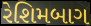
રેશિમબાગ